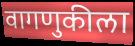
वागणुकीला